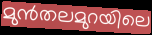
മുൻതലമുറയിലെ